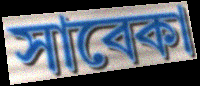
সাবেকা